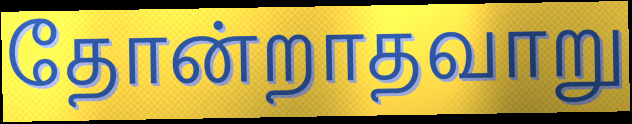
தோன்றாதவாறு